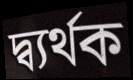
দ্ব্যর্থক